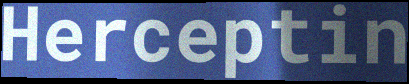
Herceptin